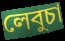
লেবুচা